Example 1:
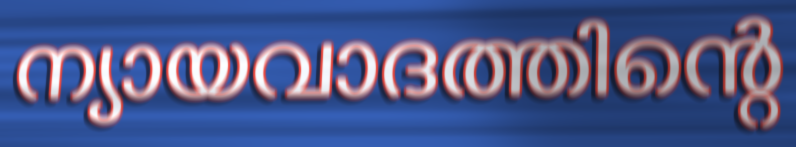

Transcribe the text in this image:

ന്യായവാദത്തിന്റെ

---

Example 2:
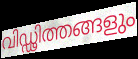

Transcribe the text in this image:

വിഡ്ഢിത്തങ്ങളും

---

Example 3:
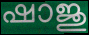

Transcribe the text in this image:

ഷാജു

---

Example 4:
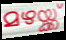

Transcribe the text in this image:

മഴയ്ക്ക്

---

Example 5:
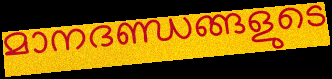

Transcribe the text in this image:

മാനദണ്ഡങ്ങളുടെ